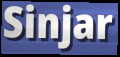
Sinjar